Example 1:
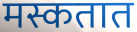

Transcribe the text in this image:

मस्कतात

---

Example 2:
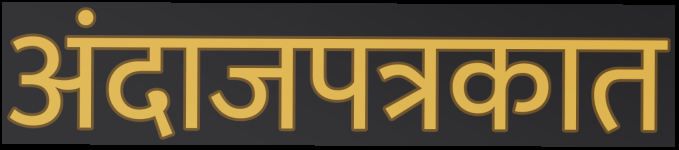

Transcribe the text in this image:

अंदाजपत्रकात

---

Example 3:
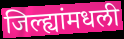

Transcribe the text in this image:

जिल्ह्यांमधली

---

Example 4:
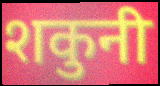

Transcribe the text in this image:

शकुनी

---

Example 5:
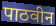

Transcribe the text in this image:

पाठवीन